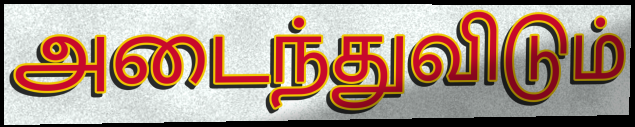
அடைந்துவிடும்